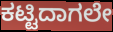
ಕಟ್ಟಿದಾಗಲೇ